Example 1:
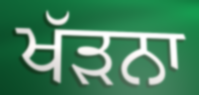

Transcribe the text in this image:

ਖੱੜਨਾ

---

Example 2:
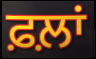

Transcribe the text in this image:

ਫ਼ਲ਼ਾਂ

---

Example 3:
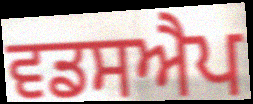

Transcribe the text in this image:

ਵਡਸਐਪ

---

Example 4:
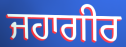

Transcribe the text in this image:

ਜਹਾਗੀਰ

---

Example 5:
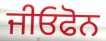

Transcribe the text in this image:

ਜੀਓਫੋਨ